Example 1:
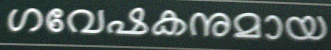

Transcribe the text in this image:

ഗവേഷകനുമായ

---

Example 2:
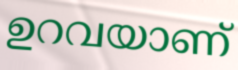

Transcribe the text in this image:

ഉറവയാണ്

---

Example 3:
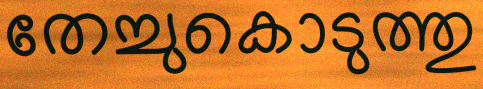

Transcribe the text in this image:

തേച്ചുകൊടുത്തു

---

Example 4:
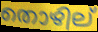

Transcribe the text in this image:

തൊഴില്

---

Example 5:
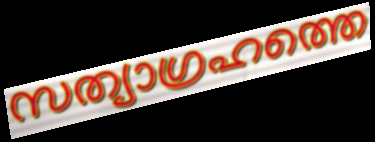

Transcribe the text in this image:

സത്യാഗ്രഹത്തെ